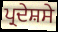
ਪ੍ਰਦੇਸ਼ਸੇ